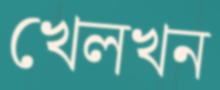
খেলখন